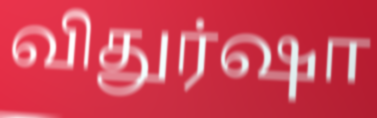
விதுர்ஷா